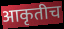
आकृतीच